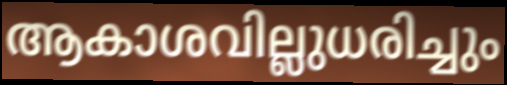
ആകാശവില്ലുധരിച്ചും